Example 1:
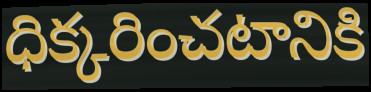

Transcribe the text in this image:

ధిక్కరించటానికి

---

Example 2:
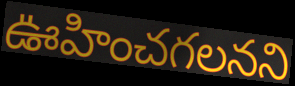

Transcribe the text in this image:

ఊహించగలనని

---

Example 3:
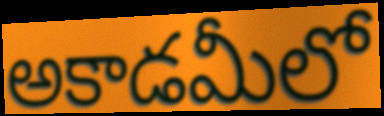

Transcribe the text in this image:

అకాడమీలో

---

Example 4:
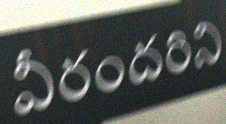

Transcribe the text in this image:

వీరందరిని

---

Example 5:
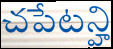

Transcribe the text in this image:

చపేటన్హి